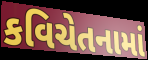
કવિચેતનામાં